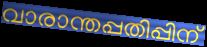
വാരാന്തപ്പതിപ്പിന്